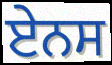
ਏਨਸ